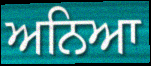
ਅਨਿਆ